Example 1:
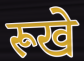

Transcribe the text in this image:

रूखे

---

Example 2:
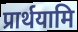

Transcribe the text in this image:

प्रार्थयामि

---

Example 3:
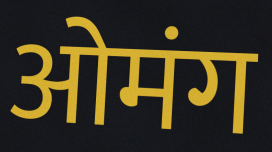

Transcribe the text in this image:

ओमंग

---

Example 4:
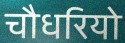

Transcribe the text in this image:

चौधरियो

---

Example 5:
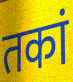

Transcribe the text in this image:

तकां